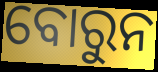
ବୋରୁନ